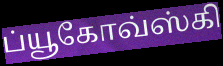
ப்யூகோவ்ஸ்கி